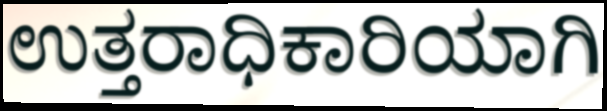
ಉತ್ತರಾಧಿಕಾರಿಯಾಗಿ